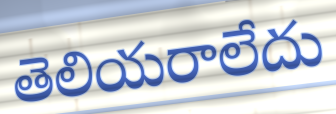
తెలియరాలేదు